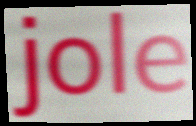
jole